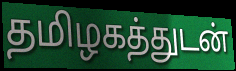
தமிழகத்துடன்